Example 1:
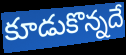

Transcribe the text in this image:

కూడుకొన్నదే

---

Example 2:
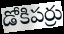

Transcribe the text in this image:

డోకిపర్రు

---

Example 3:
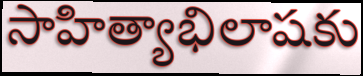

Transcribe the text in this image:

సాహిత్యాభిలాషకు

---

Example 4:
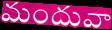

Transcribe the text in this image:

మందువా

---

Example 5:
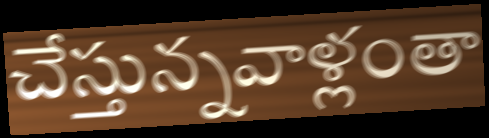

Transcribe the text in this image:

చేస్తున్నవాళ్లంతా